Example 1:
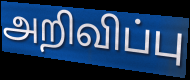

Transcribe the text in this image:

அறிவிப்பு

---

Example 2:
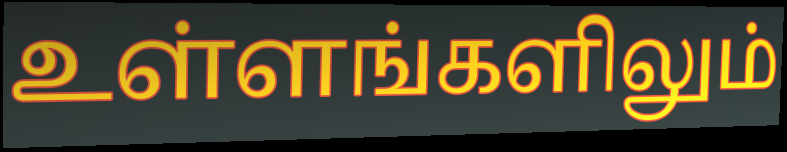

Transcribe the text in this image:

உள்ளங்களிலும்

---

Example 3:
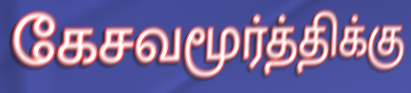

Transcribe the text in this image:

கேசவமூர்த்திக்கு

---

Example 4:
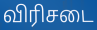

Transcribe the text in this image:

விரிசடை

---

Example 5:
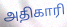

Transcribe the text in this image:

அதிகாரி